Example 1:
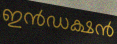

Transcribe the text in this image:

ഇൻഡക്ഷൻ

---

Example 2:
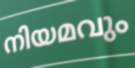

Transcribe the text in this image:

നിയമവും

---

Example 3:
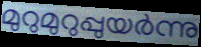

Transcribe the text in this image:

മുറുമുറുപ്പുയർന്നു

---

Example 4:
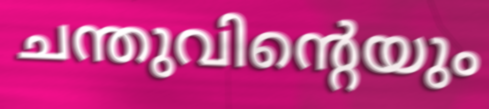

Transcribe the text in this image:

ചന്തുവിന്റെയും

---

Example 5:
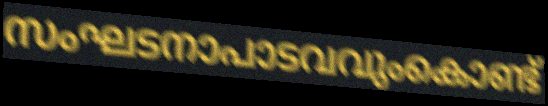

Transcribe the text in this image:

സംഘടനാപാടവവുംകൊണ്ട്